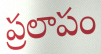
ప్రలాపం